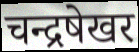
चन्द्रषेखर